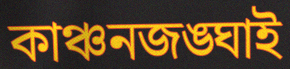
কাঞ্চনজঙ্ঘাই